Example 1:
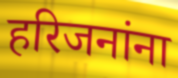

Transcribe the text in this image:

हरिजनांना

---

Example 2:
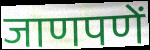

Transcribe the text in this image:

जाणपणें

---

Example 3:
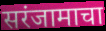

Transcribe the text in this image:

सरंजामाचा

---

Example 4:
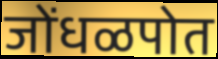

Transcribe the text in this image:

जोंधळपोत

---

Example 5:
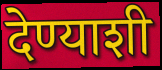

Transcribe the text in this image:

देण्याशी